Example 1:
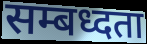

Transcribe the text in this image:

सम्बध्दता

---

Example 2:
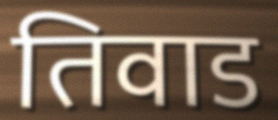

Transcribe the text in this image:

तिवाड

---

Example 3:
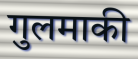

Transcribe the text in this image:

गुलमाकी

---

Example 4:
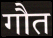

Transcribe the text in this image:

गौत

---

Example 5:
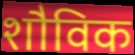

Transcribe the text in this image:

शौविक